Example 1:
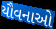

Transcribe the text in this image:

યૌવનાઓ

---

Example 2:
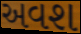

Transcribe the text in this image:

અવશ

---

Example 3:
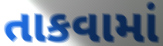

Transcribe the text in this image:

તાકવામાં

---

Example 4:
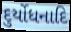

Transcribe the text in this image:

દુર્યોધનાદિ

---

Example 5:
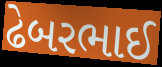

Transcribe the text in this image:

ઢેબરભાઈ